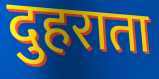
दुहराता